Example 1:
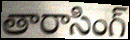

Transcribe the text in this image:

తారాసింగ్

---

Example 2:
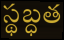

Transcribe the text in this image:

స్థబ్ధత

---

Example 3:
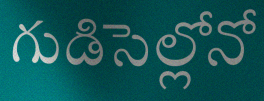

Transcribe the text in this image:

గుడిసెల్లోనో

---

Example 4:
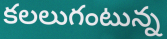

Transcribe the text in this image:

కలలుగంటున్న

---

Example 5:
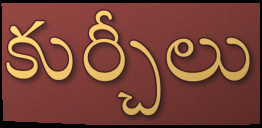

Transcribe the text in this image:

కుర్చీలు